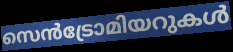
സെൻട്രോമിയറുകൾ